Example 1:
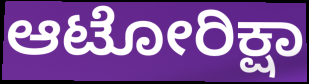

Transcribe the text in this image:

ಆಟೋರಿಕ್ಷಾ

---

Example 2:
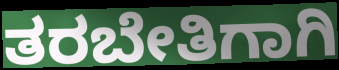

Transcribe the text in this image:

ತರಬೇತಿಗಾಗಿ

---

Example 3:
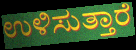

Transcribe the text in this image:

ಉಳಿಸುತ್ತಾರೆ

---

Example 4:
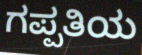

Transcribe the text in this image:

ಗಪ್ಪತಿಯ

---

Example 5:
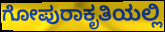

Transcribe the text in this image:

ಗೋಪುರಾಕೃತಿಯಲ್ಲಿ